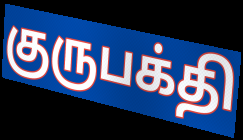
குருபக்தி